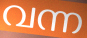
വന്ന